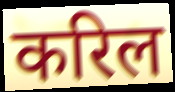
करिल